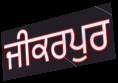
ਜੀਕਰਪੁਰ